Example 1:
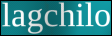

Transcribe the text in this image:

lagchilo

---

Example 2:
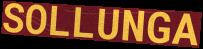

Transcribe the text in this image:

SOLLUNGA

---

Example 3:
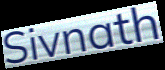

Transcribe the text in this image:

Sivnath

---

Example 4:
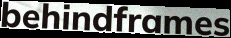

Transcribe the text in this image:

behindframes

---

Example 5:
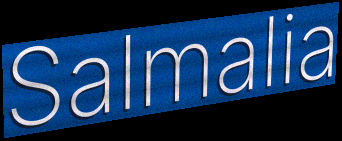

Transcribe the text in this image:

Salmalia